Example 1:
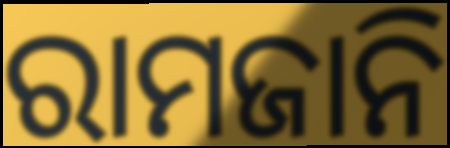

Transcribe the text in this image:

ରାମଜାନି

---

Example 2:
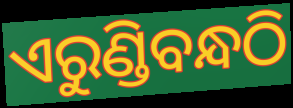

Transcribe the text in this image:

ଏରୁଣ୍ଡିବନ୍ଧଠି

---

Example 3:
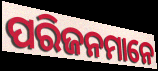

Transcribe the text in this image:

ପରିଜନମାନେ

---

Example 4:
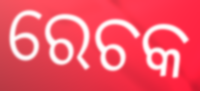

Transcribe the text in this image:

ରେଚକ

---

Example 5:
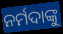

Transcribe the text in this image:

ନର୍ମଦାଙ୍କୁ